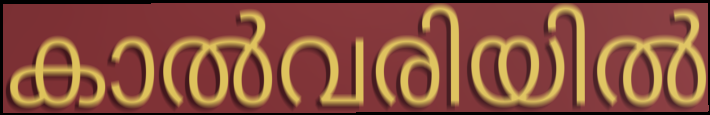
കാൽവരിയിൽ